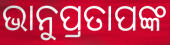
ଭାନୁପ୍ରତାପଙ୍କ